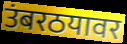
उंबरठयावर